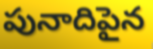
పునాదిపైన